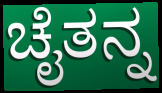
ಚೈತನ್ನ